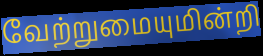
வேற்றுமையுமின்றி